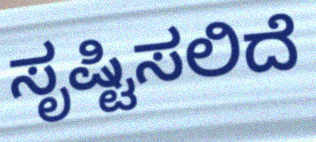
ಸೃಷ್ಟಿಸಲಿದೆ